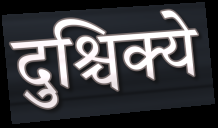
दुश्चिक्ये